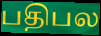
பதிபல